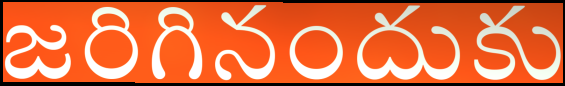
జరిగినందుకు